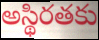
అస్థిరతకు